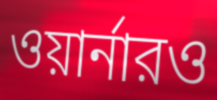
ওয়ার্নারও